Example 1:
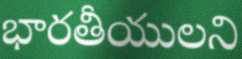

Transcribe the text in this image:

భారతీయులని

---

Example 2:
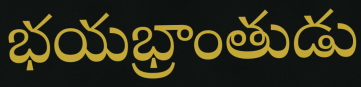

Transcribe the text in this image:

భయభ్రాంతుడు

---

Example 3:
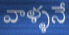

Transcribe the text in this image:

వాళ్ళనే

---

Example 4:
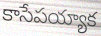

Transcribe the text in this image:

కాసేపయ్యాక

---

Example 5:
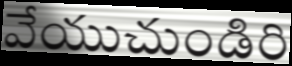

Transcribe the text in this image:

వేయుచుండిరి